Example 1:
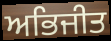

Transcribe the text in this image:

ਅਭਿਜੀਤ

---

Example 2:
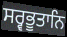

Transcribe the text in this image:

ਸਰ੍ਵਭੂਤਾਨਿ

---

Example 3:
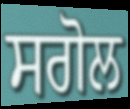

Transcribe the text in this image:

ਸਗੋਲ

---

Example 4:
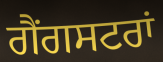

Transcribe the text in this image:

ਗੈਂਗਸਟਰਾਂ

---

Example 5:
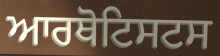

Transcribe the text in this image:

ਆਰਥੋਟਿਸਟਸ